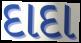
દાદા